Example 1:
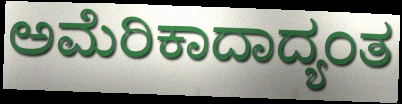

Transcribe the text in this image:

ಅಮೆರಿಕಾದಾದ್ಯಂತ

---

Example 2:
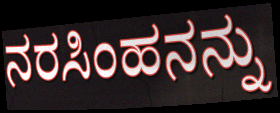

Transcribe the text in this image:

ನರಸಿಂಹನನ್ನು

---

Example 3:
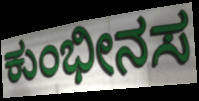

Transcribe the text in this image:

ಕುಂಭೀನಸ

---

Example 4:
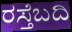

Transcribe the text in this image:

ರಸ್ತೆಬದಿ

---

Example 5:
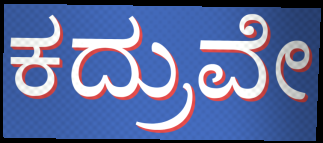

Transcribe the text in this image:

ಕದ್ರುವೇ